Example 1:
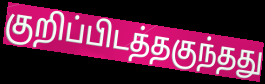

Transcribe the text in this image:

குறிப்பிடத்தகுந்தது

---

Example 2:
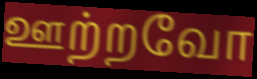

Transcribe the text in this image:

ஊற்றவோ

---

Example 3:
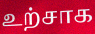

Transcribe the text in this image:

உற்சாக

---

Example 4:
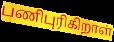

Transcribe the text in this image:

பணிபுரிகிறாள்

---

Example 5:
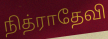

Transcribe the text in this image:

நித்ராதேவி